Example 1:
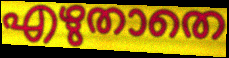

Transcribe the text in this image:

എഴുതാതെ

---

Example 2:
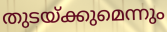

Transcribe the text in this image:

തുടയ്ക്കുമെന്നും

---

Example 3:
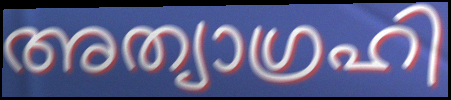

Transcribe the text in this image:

അത്യാഗ്രഹി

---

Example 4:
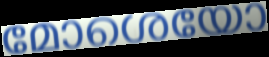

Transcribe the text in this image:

മോശെയോ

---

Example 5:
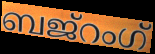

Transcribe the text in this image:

ബജ്റംഗ്